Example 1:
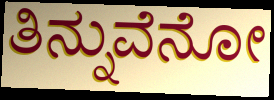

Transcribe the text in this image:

ತಿನ್ನುವೆನೋ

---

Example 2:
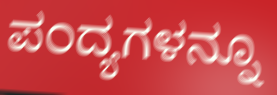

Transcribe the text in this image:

ಪಂದ್ಯಗಳನ್ನೂ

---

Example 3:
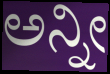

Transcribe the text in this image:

ಅನ್ನೀ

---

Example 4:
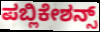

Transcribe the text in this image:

ಪಬ್ಲಿಕೇಶನ್ಸ್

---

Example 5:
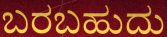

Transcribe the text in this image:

ಬರಬಹುದು